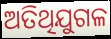
ଅତିଥିଯୁଗଳ